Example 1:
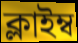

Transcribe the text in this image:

ক্লাইম্ব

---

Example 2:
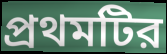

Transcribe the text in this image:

প্রথমটির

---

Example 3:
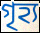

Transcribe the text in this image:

গৃহ্য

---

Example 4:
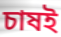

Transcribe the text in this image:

চাষই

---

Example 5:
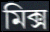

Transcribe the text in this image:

মিক্স